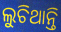
ଲୁଚିଥାନ୍ତି